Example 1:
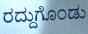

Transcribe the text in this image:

ರದ್ದುಗೊಂಡು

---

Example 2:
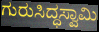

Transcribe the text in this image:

ಗುರುಸಿದ್ಧಸ್ವಾಮಿ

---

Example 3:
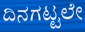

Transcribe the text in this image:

ದಿನಗಟ್ಟಲೇ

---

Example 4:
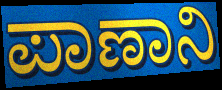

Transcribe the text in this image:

ಪಾಣಾನಿ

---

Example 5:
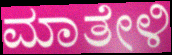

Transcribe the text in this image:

ಮಾತೇಳಿ